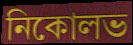
নিকোলভ